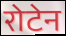
रोटेन